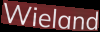
Wieland